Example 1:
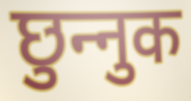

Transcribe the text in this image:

छुन्नुक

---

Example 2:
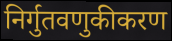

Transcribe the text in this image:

निर्गुतवणुकीकरण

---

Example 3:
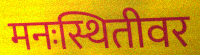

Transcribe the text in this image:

मनःस्थितीवर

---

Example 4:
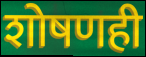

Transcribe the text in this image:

शोषणही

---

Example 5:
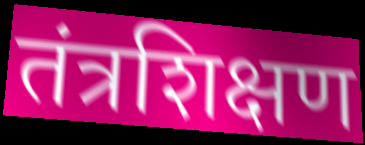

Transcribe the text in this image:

तंत्रशिक्षण